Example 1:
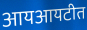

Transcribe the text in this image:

आयआयटीत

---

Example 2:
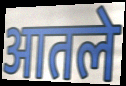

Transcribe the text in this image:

आतले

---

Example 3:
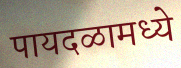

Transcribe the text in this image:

पायदळामध्ये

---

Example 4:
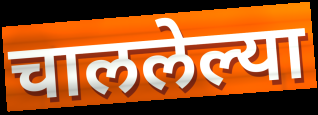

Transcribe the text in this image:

चाललेल्या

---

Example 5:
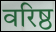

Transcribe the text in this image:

वरिष्ठ